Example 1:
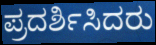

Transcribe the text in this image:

ಪ್ರದರ್ಶಿಸಿದರು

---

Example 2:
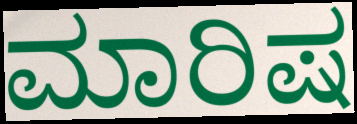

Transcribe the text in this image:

ಮಾರಿಷ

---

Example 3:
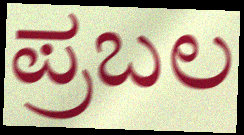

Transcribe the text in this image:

ಪ್ರಬಲ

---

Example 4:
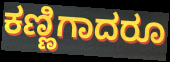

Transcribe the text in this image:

ಕಣ್ಣಿಗಾದರೂ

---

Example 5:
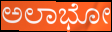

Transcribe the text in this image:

ಅಲಾಭೋ